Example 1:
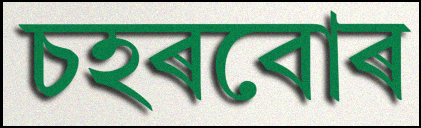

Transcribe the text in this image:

চহৰবোৰ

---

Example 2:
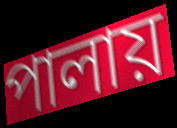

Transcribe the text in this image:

পালায়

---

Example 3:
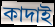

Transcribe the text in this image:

কাদাই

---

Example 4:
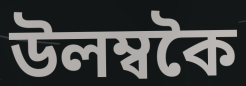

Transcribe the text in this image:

উলম্বকৈ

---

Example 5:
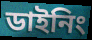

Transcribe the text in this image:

ডাইনিং